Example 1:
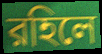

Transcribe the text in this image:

রহিলে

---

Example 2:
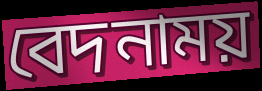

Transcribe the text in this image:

বেদনাময়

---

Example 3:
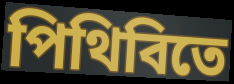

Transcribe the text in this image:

পিথিবিতে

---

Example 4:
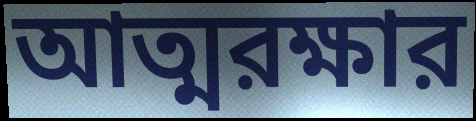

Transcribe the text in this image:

আত্মরক্ষার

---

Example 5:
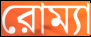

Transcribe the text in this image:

রোম্যা